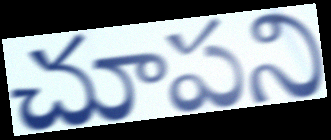
చూపని